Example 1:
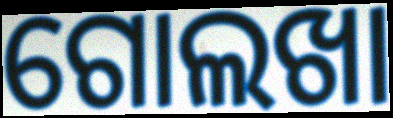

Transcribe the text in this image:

ଗୋଲଖା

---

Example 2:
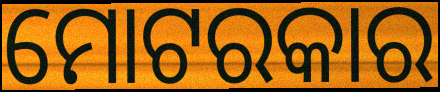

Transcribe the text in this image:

ମୋଟରକାର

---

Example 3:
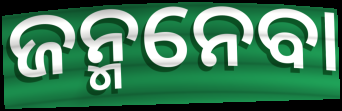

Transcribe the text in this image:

ଜନ୍ମନେବା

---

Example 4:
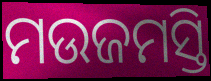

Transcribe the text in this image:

ମଉଜମସ୍ତି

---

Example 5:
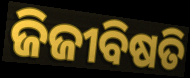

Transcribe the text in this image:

ଜିଜୀବିଷତି